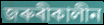
জৰুৰীকালীন